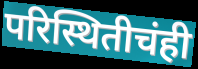
परिस्थितीचंही